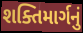
શક્તિમાર્ગનું